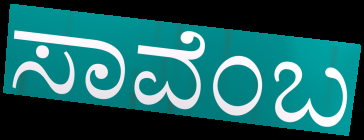
ಸಾವೆಂಬ